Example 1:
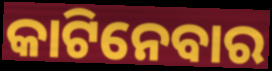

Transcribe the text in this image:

କାଟିନେବାର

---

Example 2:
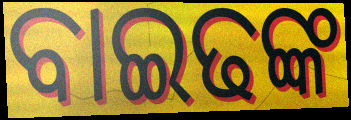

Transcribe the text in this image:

ବାଇଢଙ୍କ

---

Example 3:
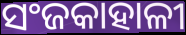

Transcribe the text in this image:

ସଂଜକାହାଳୀ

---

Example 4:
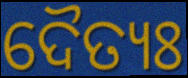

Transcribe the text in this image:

ଦୈତ୍ୟଃ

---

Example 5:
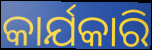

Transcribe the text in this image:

କାର୍ଯକାରି